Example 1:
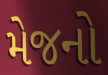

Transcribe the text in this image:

મેજનો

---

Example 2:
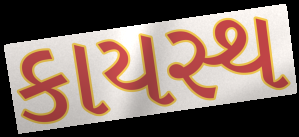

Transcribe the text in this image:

કાયસ્થ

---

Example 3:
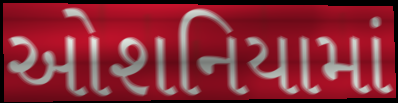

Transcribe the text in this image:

ઓશનિયામાં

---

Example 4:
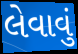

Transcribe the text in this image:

લેવાવું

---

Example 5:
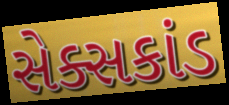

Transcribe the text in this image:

સેક્સકાંડ